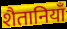
शैतानियाँ